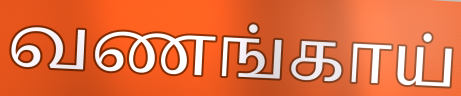
வணங்காய்